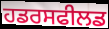
ਹਡਰਸਫੀਲਡ